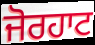
ਜੋਰਹਾਟ